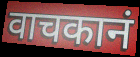
वाचकानं